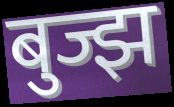
बुज्झ